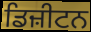
ਡਿਜ਼ੀਟਨ